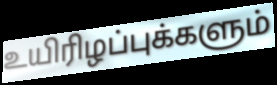
உயிரிழப்புக்களும்